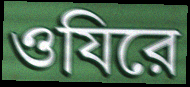
ওযিরে